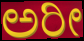
ಅರೀ